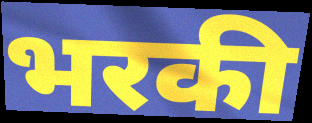
भरकी